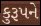
કુરૂપને